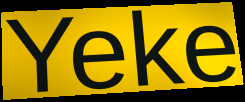
Yeke